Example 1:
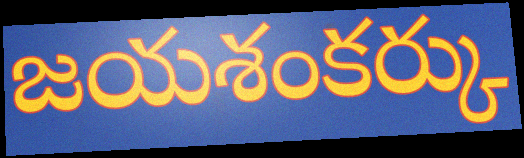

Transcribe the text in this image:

జయశంకర్కు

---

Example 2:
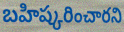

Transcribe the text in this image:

బహిష్కరించారని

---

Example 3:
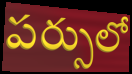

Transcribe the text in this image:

పర్సులో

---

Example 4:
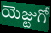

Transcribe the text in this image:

యెజ్టుగో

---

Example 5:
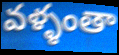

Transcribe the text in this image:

వళ్ళంతా